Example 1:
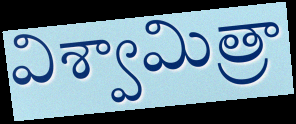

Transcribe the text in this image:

విశ్వామిత్రా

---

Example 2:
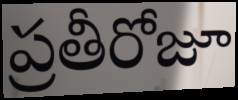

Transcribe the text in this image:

ప్రతీరోజూ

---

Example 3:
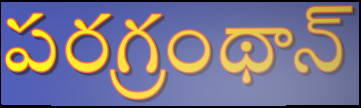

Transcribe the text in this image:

పరగ్రంథాన్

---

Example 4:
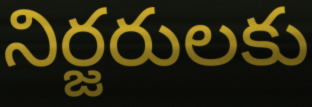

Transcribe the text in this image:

నిర్జరులకు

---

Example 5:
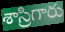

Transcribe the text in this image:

శాస్రిగారు